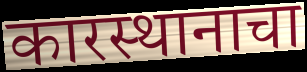
कारस्थानाचा